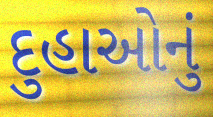
દુહાઓનું